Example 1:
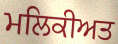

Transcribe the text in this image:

ਮਲਿਕੀਅਤ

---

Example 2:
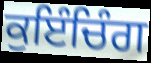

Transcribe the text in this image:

ਕੁਇੰਚਿੰਗ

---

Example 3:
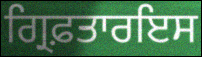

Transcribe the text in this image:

ਗ੍ਰਿਫ਼ਤਾਰਇਸ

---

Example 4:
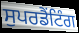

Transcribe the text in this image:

ਸੁਪਰਡੈਂਟਿੰਗ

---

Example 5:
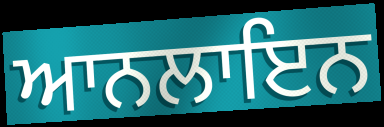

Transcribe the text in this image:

ਆਨਲਾਇਨ